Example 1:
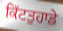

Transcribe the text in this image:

ਕਿੱਟਤੁਹਾਡੇ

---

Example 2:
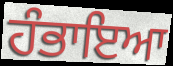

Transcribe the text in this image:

ਹੰਭਾਇਆ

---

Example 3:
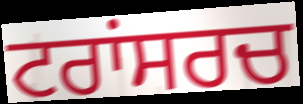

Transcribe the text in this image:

ਟਰਾਂਸਰਚ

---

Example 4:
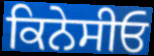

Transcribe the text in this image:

ਕਿਨੇਸੀਓ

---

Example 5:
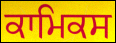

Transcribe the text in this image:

ਕਾਮਿਕਸ